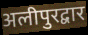
अलीपुरद्वार